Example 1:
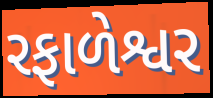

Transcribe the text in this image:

રફાળેશ્વર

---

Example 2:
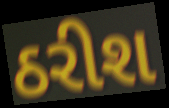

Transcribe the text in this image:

ઠરીશ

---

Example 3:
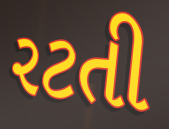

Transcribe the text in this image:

રટતી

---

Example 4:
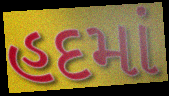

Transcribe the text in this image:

હદમાં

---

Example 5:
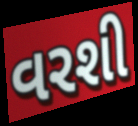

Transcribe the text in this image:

વરશી